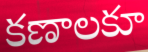
కణాలకూ